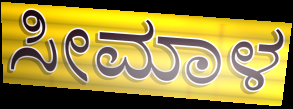
ಸೀಮಾಳ